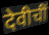
देवीचीं